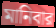
মানিবার